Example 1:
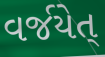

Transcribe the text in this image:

વર્જયેત્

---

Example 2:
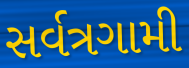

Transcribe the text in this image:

સર્વત્રગામી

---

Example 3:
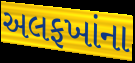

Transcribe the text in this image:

અલફખાંના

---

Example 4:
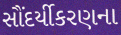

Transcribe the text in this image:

સૌંદર્યીકરણના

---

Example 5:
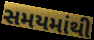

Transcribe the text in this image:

સમયમાંથી